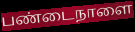
பண்டைநாளை